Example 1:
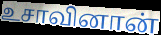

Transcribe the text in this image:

உசாவினான்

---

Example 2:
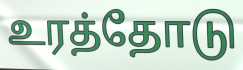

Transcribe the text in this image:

உரத்தோடு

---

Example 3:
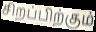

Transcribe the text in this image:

சிறப்பிற்கும்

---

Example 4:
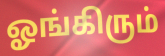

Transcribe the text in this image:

ஓங்கிரும்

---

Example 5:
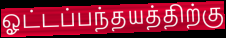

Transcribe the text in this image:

ஓட்டப்பந்தயத்திற்கு